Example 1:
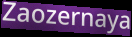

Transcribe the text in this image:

Zaozernaya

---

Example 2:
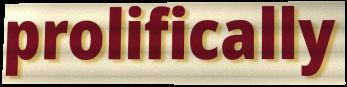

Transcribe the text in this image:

prolifically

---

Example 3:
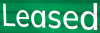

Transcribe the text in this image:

Leased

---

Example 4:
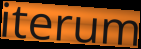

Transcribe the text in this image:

iterum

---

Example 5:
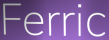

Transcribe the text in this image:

Ferric